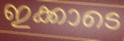
ഇക്കാടെ